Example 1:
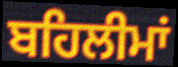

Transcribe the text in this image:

ਬਹਿਲੀਮਾਂ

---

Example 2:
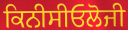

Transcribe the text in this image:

ਕਿਨੀਸੀਓਲੋਜੀ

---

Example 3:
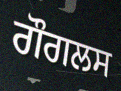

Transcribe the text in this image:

ਗੌਗਲਸ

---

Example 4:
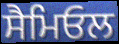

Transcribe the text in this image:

ਸੈਮਿਓਲ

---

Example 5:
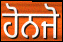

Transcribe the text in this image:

ਹੋਨਜੋ